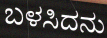
ಬಳಸಿದನು